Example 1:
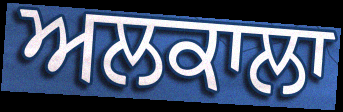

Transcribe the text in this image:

ਅਲਕਾਲਾ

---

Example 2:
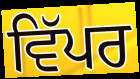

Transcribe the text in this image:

ਵਿੱਪਰ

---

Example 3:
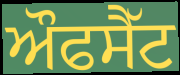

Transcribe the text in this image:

ਔਫਸੈੱਟ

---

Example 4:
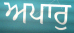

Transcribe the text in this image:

ਅਪਾਰੁ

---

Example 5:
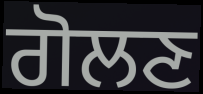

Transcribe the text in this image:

ਗੋਲਣ